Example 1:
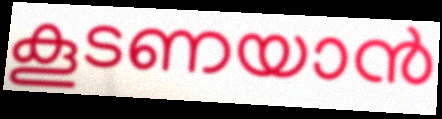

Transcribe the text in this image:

കൂടണയാൻ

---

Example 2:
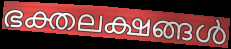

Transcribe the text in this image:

ഭക്തലക്ഷങ്ങൾ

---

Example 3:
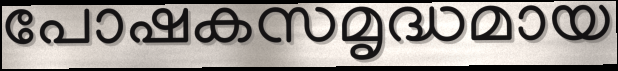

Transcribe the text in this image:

പോഷകസമൃദ്ധമായ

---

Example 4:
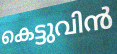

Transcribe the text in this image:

കെട്ടുവിൻ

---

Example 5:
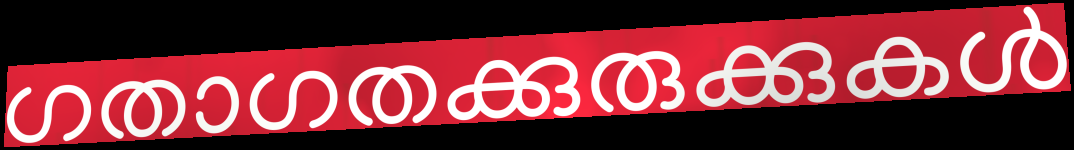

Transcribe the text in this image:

ഗതാഗതക്കുരുക്കുകൾ